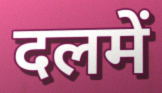
दलमें